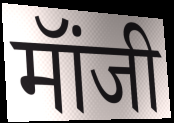
मॉंजी